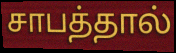
சாபத்தால்